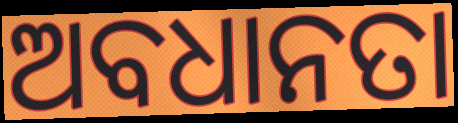
ଅବଧାନତା